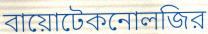
বায়োটেকনোলজির